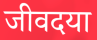
जीवदया